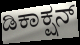
ಡಿಕಾಕ್ಷನ್